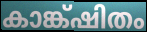
കാങ്ക്ഷിതം